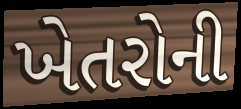
ખેતરોની